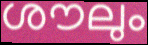
ശൗലും